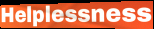
Helplessness